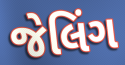
જેલિંગ